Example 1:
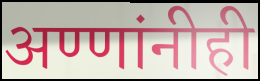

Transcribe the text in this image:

अण्णांनीही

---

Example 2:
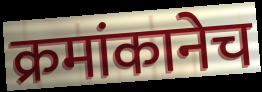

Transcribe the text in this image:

क्रमांकानेच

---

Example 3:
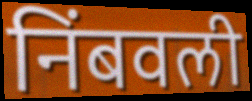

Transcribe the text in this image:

निंबवली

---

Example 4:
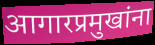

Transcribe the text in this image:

आगारप्रमुखांना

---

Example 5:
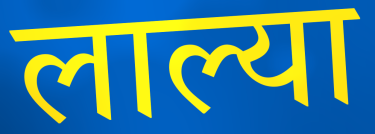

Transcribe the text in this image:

लाल्या